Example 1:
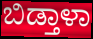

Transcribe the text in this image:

ಬಿಡ್ತಾಳಾ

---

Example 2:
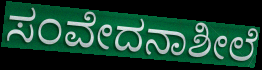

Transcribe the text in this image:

ಸಂವೇದನಾಶೀಲೆ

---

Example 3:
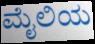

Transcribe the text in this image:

ಮೈಲಿಯ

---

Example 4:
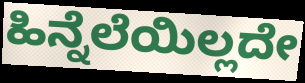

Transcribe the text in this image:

ಹಿನ್ನೆಲೆಯಿಲ್ಲದೇ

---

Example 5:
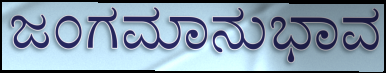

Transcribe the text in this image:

ಜಂಗಮಾನುಭಾವ